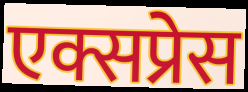
एक्सप्रेस